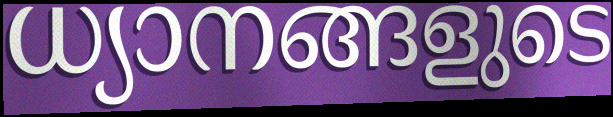
ധ്യാനങ്ങളുടെ